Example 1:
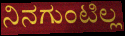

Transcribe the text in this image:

ನಿನಗುಂಟಿಲ್ಲ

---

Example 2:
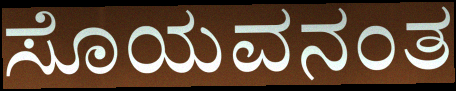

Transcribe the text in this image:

ಸೊಯವನಂತ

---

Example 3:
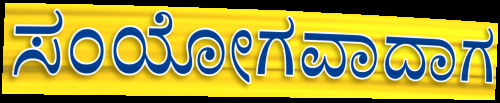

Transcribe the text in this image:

ಸಂಯೋಗವಾದಾಗ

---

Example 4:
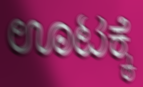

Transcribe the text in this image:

ಊಟಕ್ಕೆ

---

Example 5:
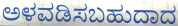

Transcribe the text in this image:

ಅಳವಡಿಸಬಹುದಾದ